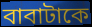
বাবাটাকে